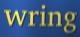
wring